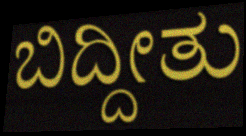
ಬಿದ್ದೀತು